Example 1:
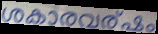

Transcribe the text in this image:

ശകാരവര്ഷം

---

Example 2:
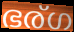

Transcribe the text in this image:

ഭര്ഗ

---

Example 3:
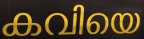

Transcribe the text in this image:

കവിയെ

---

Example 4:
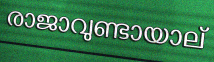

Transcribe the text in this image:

രാജാവുണ്ടായാല്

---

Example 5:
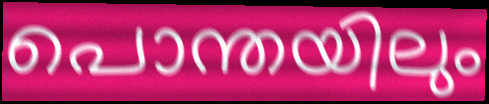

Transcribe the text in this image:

പൊന്തയിലും